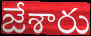
జేశారు